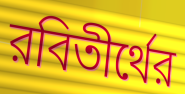
রবিতীর্থের